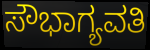
ಸೌಭಾಗ್ಯವತಿ